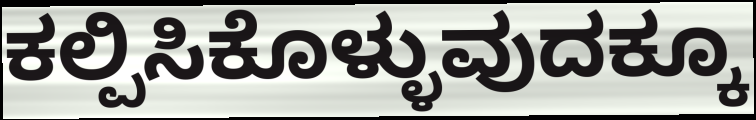
ಕಲ್ಪಿಸಿಕೊಳ್ಳುವುದಕ್ಕೂ